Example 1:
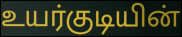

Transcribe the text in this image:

உயர்குடியின்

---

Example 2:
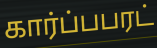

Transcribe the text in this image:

கார்ப்பபரட்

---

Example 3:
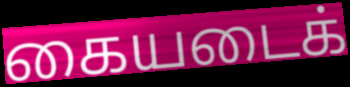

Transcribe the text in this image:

கையடைக்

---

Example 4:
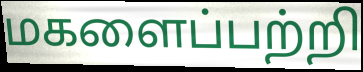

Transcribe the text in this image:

மகளைப்பற்றி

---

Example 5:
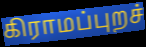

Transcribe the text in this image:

கிராமப்புறச்